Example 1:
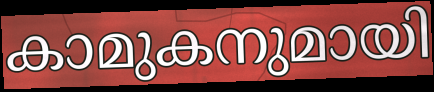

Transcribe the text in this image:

കാമുകനുമായി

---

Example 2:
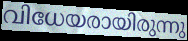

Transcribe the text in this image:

വിധേയരായിരുന്നു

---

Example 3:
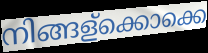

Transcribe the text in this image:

നിങ്ങള്ക്കൊക്കെ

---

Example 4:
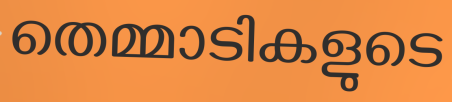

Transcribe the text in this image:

തെമ്മാടികളുടെ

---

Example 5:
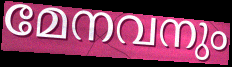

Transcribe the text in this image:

മേനവനും